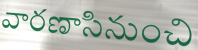
వారణాసినుంచి